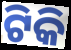
ଟିକି